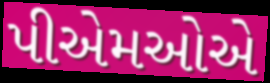
પીએમઓએ